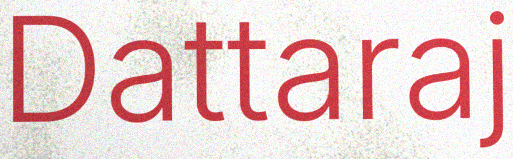
Dattaraj